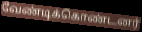
வேண்டிக்கொண்டனர்